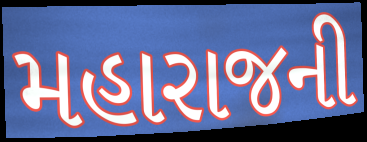
મહારાજની